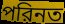
পরিনত